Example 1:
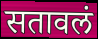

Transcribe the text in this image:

सतावलं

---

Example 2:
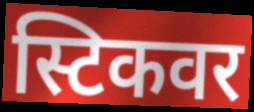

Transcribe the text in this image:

स्टिकवर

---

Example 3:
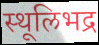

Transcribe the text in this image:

स्थूलिभद्र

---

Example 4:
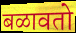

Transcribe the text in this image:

बळावतो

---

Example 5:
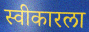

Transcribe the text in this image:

स्वीकारला